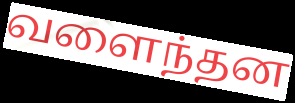
வளைந்தன